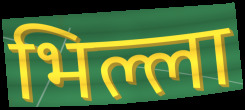
भिल्ला